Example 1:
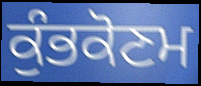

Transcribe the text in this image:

ਕੁੰਭਕੋਣਮ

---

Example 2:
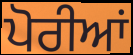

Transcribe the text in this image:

ਪੋਰੀਆਂ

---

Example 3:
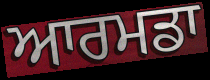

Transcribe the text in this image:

ਆਰਮਡਾ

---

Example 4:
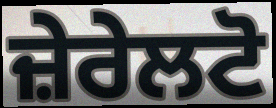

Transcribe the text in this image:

ਜ਼ੇਰੇਲਟੋ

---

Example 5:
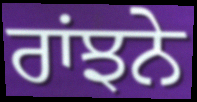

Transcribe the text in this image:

ਰਾਂਝਨੇ